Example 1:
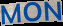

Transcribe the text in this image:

MON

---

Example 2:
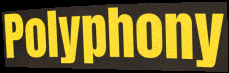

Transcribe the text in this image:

Polyphony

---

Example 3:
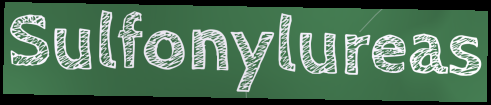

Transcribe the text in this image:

Sulfonylureas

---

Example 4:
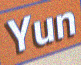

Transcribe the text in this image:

Yun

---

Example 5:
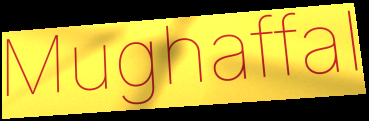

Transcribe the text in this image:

Mughaffal